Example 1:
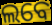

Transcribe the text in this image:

ଲବେ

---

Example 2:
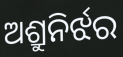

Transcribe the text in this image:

ଅଶ୍ରୁନିର୍ଝର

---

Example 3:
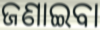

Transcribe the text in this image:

ଜଣାଇବା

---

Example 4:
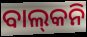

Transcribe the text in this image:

ବାଲ୍‍କନି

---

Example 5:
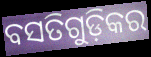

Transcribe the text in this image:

ବସତିଗୁଡ଼ିକର